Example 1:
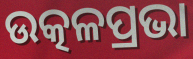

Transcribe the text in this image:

ଉତ୍କଳପ୍ରଭା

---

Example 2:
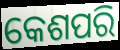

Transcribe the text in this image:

କେଶପରି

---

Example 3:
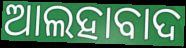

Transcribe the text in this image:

ଆଲହାବାଦ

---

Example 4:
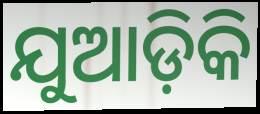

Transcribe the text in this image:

ଯୁଆଡ଼ିକି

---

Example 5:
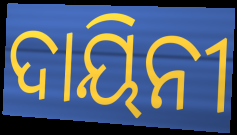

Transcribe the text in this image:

ଦାୟିନୀ